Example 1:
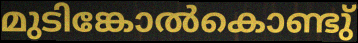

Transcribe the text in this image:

മുടിങ്കോൽകൊണ്ടു്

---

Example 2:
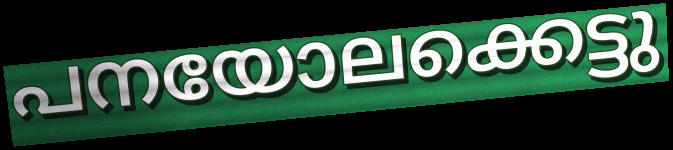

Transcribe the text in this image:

പനയോലക്കെട്ടു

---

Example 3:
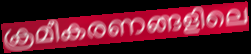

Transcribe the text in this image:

ക്രമീകരണങ്ങളിലെ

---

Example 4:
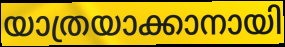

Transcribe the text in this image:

യാത്രയാക്കാനായി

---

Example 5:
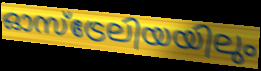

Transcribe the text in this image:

ഓസ്ട്രേലിയയിലും